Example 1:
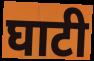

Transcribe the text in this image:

घाटी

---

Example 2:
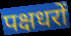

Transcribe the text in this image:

पक्षधरों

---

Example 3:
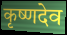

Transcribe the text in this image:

कृष्णदेव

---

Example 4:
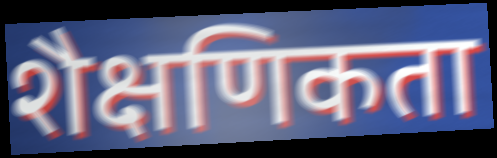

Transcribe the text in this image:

शैक्षणिकता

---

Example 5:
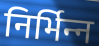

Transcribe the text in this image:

निर्भिन्न